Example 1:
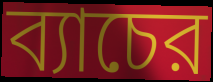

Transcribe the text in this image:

ব্যাচের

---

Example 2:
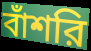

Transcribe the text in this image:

বাঁশরি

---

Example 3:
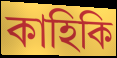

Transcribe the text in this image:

কাহিকি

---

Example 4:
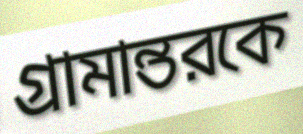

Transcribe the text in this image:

গ্রামান্তরকে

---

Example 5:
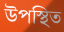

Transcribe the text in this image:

উপস্থিত